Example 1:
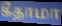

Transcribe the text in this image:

கீதாமா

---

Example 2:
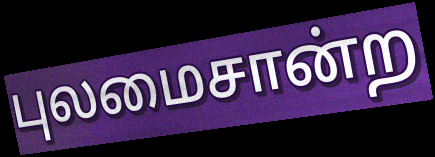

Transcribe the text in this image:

புலமைசான்ற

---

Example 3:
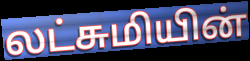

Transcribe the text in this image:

லட்சுமியின்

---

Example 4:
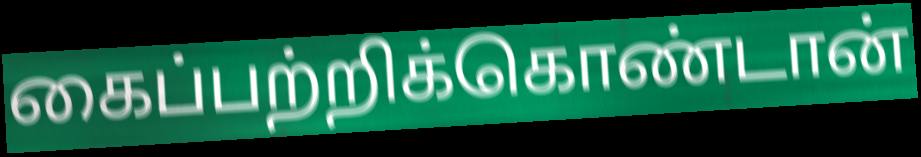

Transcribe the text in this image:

கைப்பற்றிக்கொண்டான்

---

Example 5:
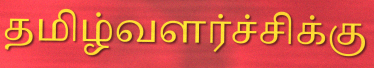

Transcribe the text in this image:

தமிழ்வளர்ச்சிக்கு